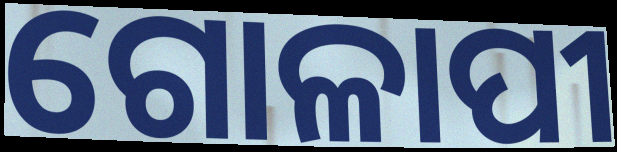
ଗୋଳାପୀ